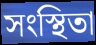
সংস্থিতা